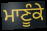
ਮਾਣੂੰਕੇ